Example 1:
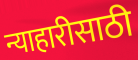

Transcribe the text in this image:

न्याहारीसाठी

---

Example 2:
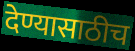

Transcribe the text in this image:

देण्यासाठीच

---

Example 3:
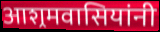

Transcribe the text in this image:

आश्रमवासियांनी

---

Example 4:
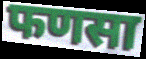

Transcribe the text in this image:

फणसा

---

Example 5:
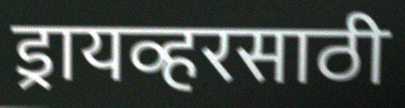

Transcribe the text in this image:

ड्रायव्हरसाठी